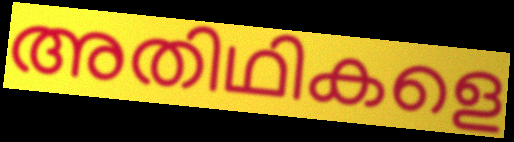
അതിഥികളെ